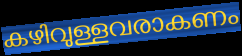
കഴിവുള്ളവരാകണം